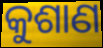
କୁଶାଣ